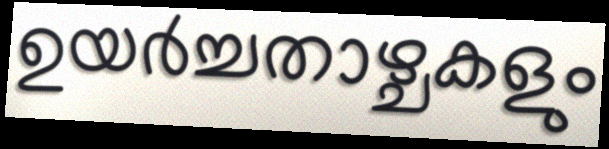
ഉയർച്ചതാഴ്ചകളും